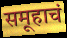
समूहाचं